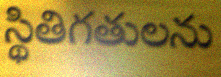
స్థితిగతులను